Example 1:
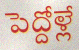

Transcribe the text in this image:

పెద్దోళ్లే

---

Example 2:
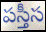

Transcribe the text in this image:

పస్తీస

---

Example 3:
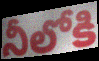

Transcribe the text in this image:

నీలోకి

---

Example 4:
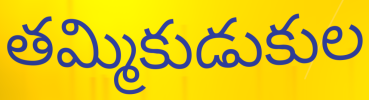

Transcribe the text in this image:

తమ్మికుడుకుల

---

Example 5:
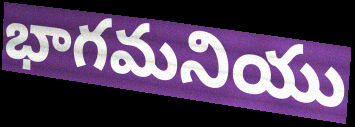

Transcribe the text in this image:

భాగమనియు